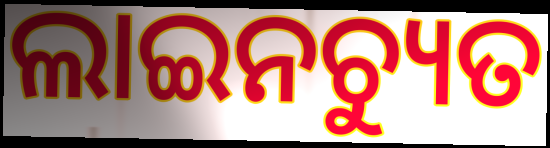
ଲାଇନଚ୍ୟୁତ